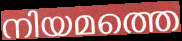
നിയമത്തെ